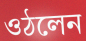
ওঠলেন